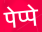
पेप्पे